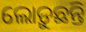
ଲୋଡ଼ୁଛନ୍ତି